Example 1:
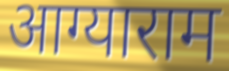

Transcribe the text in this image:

आग्याराम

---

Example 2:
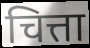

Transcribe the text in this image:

चित्ता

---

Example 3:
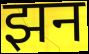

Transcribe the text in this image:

झन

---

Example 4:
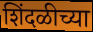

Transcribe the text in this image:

शिंदळीच्या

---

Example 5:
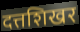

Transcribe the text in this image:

दत्तशिखर